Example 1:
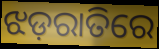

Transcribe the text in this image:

ଝଡ଼ରାତିରେ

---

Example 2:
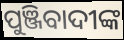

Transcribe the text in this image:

ପୁଞ୍ଜିବାଦୀଙ୍କ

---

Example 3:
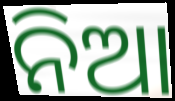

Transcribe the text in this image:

ନିଆ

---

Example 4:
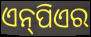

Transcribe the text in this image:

ଏନ୍‌ପିଏର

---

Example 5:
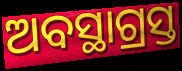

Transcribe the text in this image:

ଅବସ୍ଥାଗ୍ରସ୍ତ